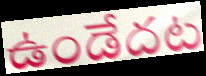
ఉండేదట